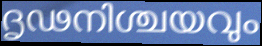
ദൃഢനിശ്ചയവും